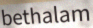
bethalam